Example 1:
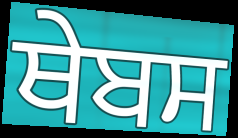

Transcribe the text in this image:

ਥੇਬਸ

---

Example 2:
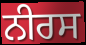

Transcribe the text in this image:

ਨੀਰਸ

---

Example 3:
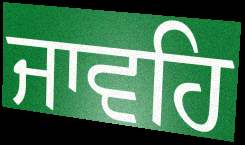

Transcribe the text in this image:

ਜਾਵਹਿ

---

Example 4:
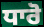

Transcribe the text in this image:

ਧਾਰੋ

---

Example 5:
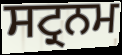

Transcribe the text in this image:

ਸਟ੍ਰਨਮ